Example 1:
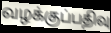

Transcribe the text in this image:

வழக்குப்பதிவு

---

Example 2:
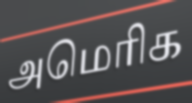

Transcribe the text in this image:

அமெரிக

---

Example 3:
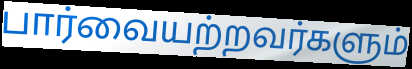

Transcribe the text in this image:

பார்வையற்றவர்களும்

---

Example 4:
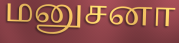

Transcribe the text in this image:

மனுசனா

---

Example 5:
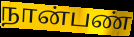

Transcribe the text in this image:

நான்பண்